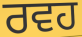
ਰਵਹ